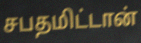
சபதமிட்டான்